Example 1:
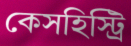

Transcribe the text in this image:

কেসহিস্ট্রি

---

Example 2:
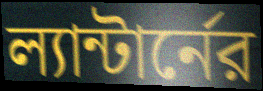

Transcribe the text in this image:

ল্যান্টার্নের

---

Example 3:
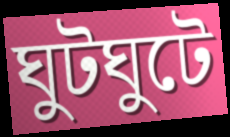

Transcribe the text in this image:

ঘুটঘুটে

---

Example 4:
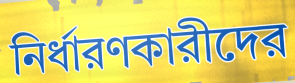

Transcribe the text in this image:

নির্ধারণকারীদের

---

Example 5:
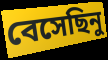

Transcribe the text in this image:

বেসেছিনু